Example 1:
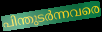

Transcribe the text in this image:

പിന്തുടർന്നവരെ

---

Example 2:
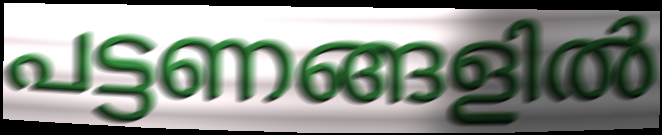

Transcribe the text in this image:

പട്ടണങ്ങളിൽ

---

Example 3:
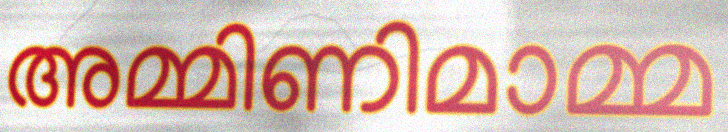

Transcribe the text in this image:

അമ്മിണിമാമ്മ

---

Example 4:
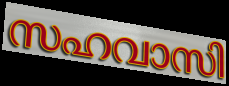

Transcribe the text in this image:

സഹവാസി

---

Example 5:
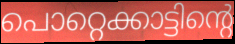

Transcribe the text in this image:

പൊറ്റെക്കാട്ടിന്റെ